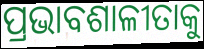
ପ୍ରଭାବଶାଳୀତାକୁ